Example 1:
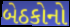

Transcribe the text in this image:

બેઠકોનો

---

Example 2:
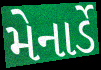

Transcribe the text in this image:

મેનાર્ડે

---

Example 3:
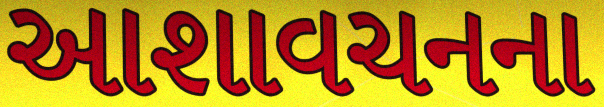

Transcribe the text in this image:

આશાવચનના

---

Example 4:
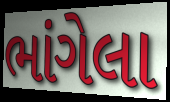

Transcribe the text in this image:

ભાંગેલા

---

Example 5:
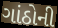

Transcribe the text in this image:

ગાંઠોની